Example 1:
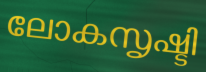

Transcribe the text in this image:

ലോകസൃഷ്ടി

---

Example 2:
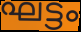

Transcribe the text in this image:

ഘട്ടം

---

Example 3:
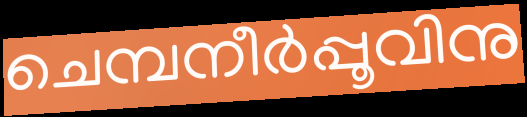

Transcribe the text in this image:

ചെമ്പനീർപ്പൂവിനു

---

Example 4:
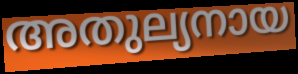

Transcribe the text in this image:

അതുല്യനായ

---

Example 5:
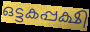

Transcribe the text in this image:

ഒട്ടകപ്പക്ഷി